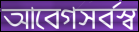
আবেগসর্বস্ব